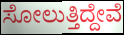
ಸೋಲುತ್ತಿದ್ದೇವೆ